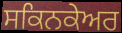
ਸਕਿਨਕੇਅਰ